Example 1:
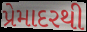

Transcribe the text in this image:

પ્રેમાદરથી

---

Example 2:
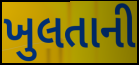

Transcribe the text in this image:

ખુલતાની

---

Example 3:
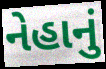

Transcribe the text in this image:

નેહાનું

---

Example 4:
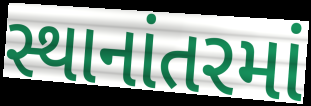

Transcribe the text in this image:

સ્થાનાંતરમાં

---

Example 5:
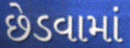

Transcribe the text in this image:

છેડવામાં